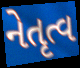
નેતૃત્વ